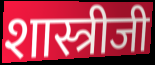
शास्त्रीजी